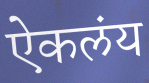
ऐकलंय